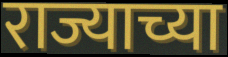
राज्याच्या